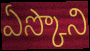
ఏస్కొని